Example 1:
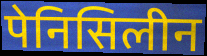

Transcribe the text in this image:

पेनिसिलीन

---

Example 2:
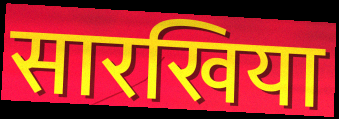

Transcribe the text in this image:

सारखिया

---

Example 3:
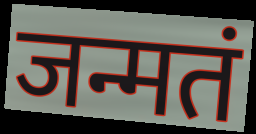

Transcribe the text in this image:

जन्मतं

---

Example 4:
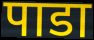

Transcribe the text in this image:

पाडा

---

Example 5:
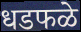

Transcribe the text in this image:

धडफळे